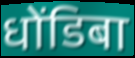
धोंडिबा